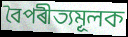
বৈপৰীত্যমূলক